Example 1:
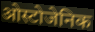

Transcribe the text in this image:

ओस्टोजेनिक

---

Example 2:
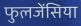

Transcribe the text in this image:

फुलजेंसिया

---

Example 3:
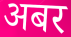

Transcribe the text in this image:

अबर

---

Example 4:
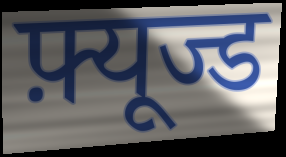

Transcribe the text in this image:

फ़्यूज्ड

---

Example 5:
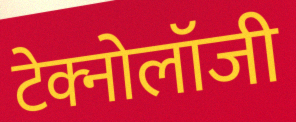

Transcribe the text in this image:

टेक्‍नोलॉजी